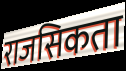
राजसिकता